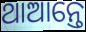
ଥାଆନ୍ତେ